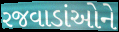
રજવાડાંઓને